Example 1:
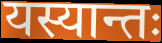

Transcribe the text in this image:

यस्यान्तः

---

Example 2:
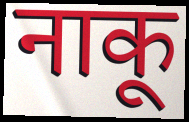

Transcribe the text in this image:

नाकू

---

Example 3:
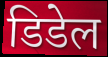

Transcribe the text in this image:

डिडेल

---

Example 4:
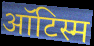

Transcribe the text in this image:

ऑटिस्म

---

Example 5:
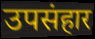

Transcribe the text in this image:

उपसंहार